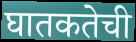
घातकतेची